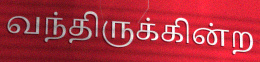
வந்திருக்கின்ற